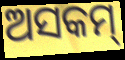
ଅସକମ୍